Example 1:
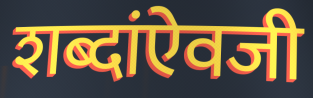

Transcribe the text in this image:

शब्दांऐवजी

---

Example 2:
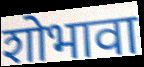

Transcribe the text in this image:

शोभावा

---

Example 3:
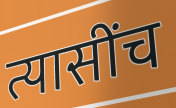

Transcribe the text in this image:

त्यासींच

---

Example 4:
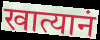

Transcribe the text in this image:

खात्यानं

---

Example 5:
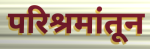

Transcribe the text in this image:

परिश्रमांतून